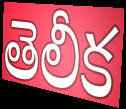
తెలీక